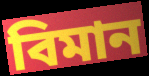
বিমান